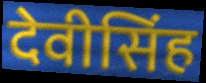
देवीसिंह